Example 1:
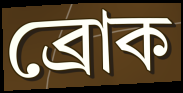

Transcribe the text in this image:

ব্রোক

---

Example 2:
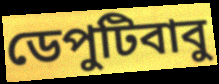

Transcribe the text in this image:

ডেপুটিবাবু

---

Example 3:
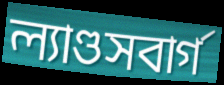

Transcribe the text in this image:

ল্যাণ্ডসবার্গ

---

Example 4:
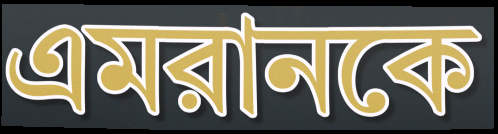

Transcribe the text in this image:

এমরানকে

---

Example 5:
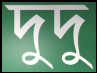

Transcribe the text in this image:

দুদু